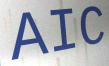
AIC